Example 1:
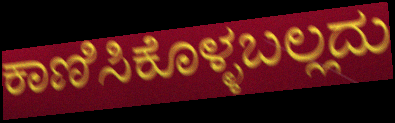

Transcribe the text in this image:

ಕಾಣಿಸಿಕೊಳ್ಳಬಲ್ಲದು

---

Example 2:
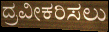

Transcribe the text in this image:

ದ್ರವೀಕರಿಸಲು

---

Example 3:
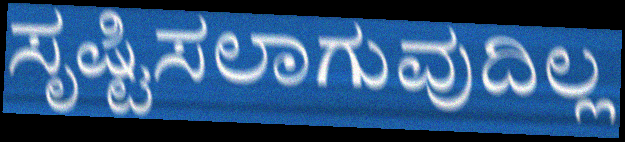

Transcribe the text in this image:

ಸೃಷ್ಟಿಸಲಾಗುವುದಿಲ್ಲ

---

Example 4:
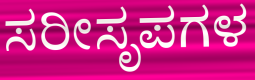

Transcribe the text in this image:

ಸರೀಸೃಪಗಳ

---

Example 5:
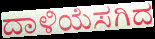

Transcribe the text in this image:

ದಾಳಿಯೆಸಗಿದ